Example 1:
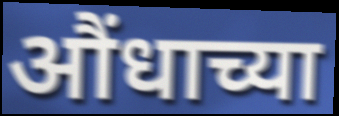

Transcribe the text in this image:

औंधाच्या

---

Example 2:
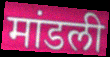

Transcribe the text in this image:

मांडली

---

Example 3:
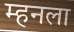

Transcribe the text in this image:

म्हनला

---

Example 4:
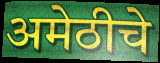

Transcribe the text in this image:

अमेठीचे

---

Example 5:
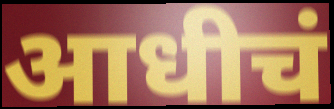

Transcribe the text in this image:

आधीचं